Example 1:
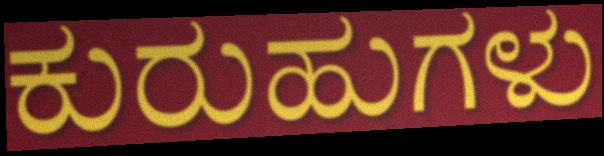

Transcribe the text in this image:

ಕುರುಹುಗಳು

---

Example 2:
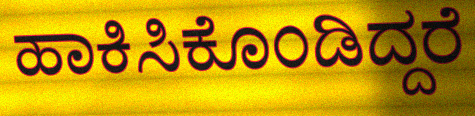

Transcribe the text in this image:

ಹಾಕಿಸಿಕೊಂಡಿದ್ದರೆ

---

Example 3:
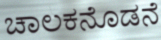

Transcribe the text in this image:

ಚಾಲಕನೊಡನೆ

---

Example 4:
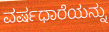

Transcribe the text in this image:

ವರ್ಷಧಾರೆಯನ್ನು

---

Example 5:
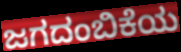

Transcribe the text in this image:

ಜಗದಂಬಿಕೆಯ